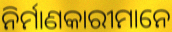
ନିର୍ମାଣକାରୀମାନେ